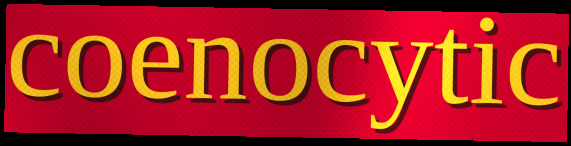
coenocytic